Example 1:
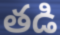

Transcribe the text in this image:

తడి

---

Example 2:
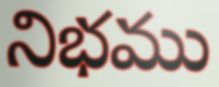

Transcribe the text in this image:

నిభము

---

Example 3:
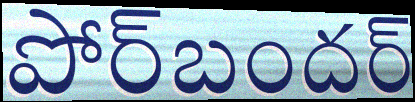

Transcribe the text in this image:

పోర్‌బందర్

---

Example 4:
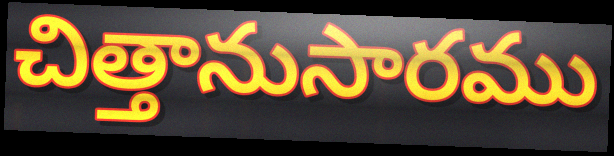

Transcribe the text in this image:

చిత్తానుసారము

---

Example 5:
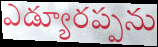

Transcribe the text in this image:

ఎడ్యూరప్పను